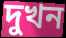
দুখন